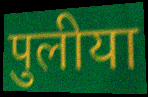
पुलीया